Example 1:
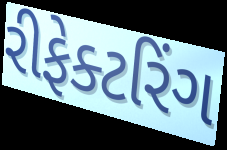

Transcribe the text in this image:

રીફેક્ટરિંગ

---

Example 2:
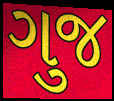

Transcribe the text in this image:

ગુજ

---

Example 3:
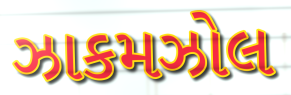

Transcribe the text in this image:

ઝાકમઝોલ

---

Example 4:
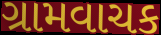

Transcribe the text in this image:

ગ્રામવાચક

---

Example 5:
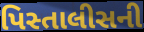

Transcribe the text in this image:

પિસ્તાલીસની